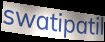
swatipatil